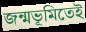
জন্মভূমিতেই